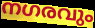
നഗരവും